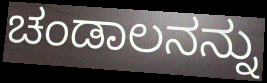
ಚಂಡಾಲನನ್ನು